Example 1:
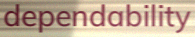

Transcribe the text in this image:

dependability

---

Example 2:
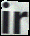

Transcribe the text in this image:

ir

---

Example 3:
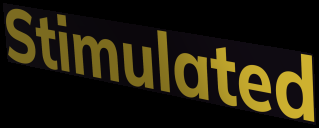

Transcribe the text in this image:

Stimulated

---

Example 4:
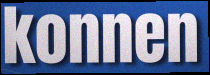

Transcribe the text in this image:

konnen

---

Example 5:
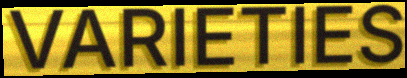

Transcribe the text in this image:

VARIETIES